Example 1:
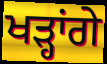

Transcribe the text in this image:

ਖੜ੍ਹਾਂਗੇ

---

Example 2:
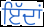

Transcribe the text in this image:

ਇੱਦਾਂ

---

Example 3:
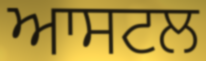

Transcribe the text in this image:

ਆਸਟਲ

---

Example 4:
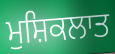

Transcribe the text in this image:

ਮੁਸ਼ਿਕਲਾਤ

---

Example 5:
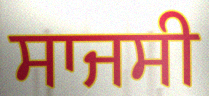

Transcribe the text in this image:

ਸਾਜਸੀ